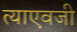
त्याएवजी